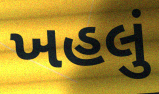
ખહલું